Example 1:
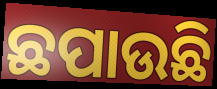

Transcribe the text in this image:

ଛପାଉଛି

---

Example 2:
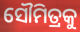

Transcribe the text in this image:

ସୌମିତ୍ରକୁ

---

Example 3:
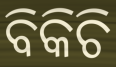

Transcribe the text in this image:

ବିକିଚି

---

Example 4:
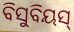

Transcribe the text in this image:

ବିସୁବିୟସ୍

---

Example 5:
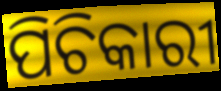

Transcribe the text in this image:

ପିଚିକାରୀ